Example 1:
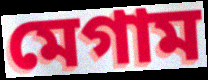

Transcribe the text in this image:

মেগাম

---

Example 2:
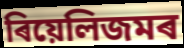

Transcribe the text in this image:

ৰিয়েলিজমৰ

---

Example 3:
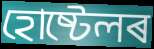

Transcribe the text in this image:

হোষ্টেলৰ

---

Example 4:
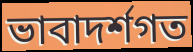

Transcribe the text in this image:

ভাবাদৰ্শগত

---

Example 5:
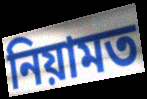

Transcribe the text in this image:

নিয়ামত